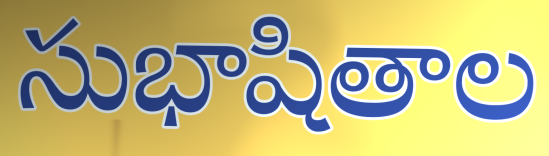
సుభాషితాల